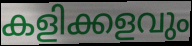
കളിക്കളവും